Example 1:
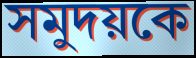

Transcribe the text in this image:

সমুদয়কে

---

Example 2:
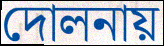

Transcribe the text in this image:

দোলনায়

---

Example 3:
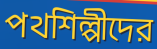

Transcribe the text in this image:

পথশিল্পীদের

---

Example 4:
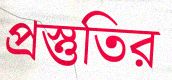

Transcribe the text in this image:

প্রস্তুতির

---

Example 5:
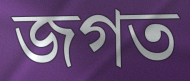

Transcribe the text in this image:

জগত